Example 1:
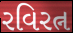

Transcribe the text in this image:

રવિરત્ન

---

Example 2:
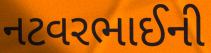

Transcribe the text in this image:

નટવરભાઈની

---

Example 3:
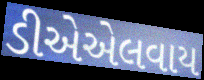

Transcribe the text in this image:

ડીએએલવાય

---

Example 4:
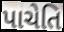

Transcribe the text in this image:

પાચેતિ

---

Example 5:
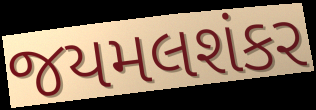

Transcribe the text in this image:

જયમલશંકર